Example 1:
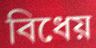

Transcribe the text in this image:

বিধেয়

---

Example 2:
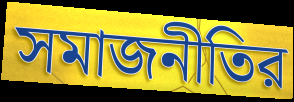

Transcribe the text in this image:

সমাজনীতির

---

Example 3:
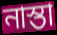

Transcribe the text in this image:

নাস্তা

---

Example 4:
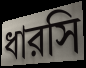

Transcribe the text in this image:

ধারসি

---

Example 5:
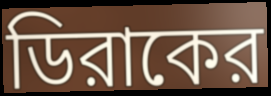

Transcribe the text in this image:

ডিরাকের